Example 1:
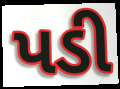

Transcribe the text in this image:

પડી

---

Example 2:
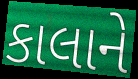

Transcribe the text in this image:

કાલાને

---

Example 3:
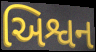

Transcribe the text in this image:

અિશ્વન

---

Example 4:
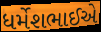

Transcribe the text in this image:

ધર્મેશભાઈએ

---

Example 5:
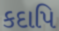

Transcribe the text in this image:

કદાપિ